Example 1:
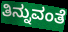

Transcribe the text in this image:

ತಿನ್ನುವಂತೆ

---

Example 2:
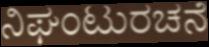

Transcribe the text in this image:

ನಿಘಂಟುರಚನೆ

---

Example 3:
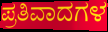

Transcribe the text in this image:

ಪ್ರತಿವಾದಗಳ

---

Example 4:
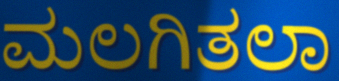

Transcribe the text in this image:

ಮಲಗಿತಲಾ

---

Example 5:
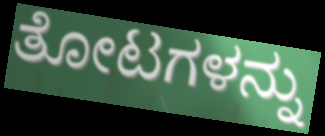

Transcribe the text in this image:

ತೋಟಗಳನ್ನು